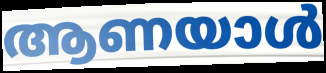
ആണയാൾ